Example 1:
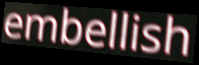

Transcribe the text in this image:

embellish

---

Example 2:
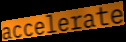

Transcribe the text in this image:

accelerate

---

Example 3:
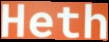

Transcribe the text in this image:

Heth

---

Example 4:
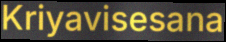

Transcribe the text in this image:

Kriyavisesana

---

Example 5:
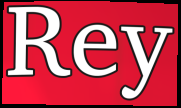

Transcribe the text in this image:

Rey